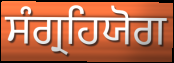
ਸੰਗ੍ਰਹਿਯੋਗ